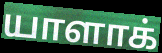
யாளாக்